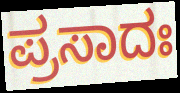
ಪ್ರಸಾದಃ